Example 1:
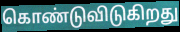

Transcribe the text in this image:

கொண்டுவிடுகிறது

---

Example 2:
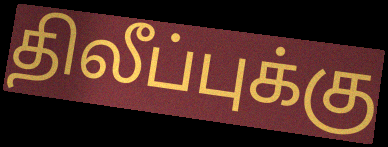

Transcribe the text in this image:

திலீப்புக்கு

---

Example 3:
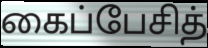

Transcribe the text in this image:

கைப்பேசித்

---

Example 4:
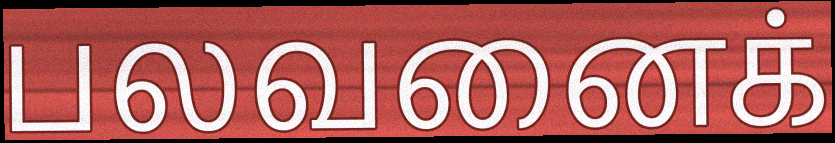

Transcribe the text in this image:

பலவனைக்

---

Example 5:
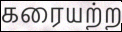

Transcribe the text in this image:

கரையற்ற